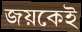
জয়কেই